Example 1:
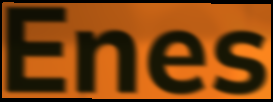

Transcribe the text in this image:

Enes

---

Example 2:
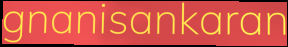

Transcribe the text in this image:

gnanisankaran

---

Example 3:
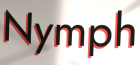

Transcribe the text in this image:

Nymph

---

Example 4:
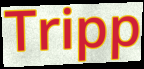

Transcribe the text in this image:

Tripp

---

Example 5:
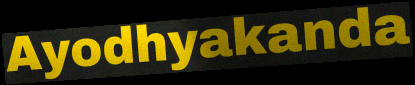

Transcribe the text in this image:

Ayodhyakanda